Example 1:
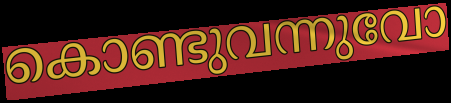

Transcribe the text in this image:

കൊണ്ടുവന്നുവോ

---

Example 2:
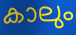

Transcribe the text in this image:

കാലും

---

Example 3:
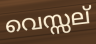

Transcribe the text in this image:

വെസ്സല്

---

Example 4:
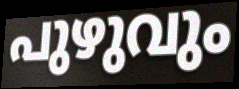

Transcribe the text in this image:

പുഴുവും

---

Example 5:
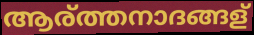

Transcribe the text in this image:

ആര്ത്തനാദങ്ങള്